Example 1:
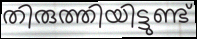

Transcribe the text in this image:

തിരുത്തിയിട്ടുണ്ട്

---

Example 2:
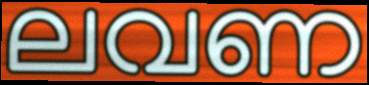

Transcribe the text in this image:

ലവണ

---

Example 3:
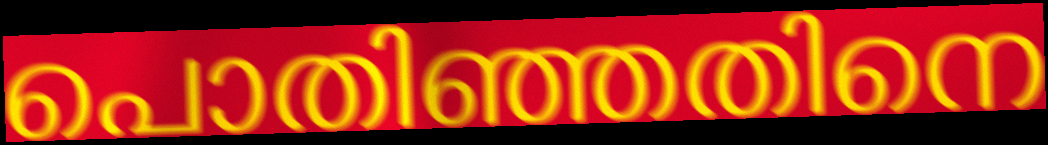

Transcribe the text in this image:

പൊതിഞ്ഞതിനെ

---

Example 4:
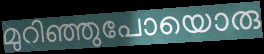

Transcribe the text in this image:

മുറിഞ്ഞുപോയൊരു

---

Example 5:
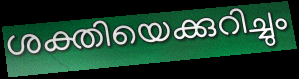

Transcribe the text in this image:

ശക്തിയെക്കുറിച്ചും